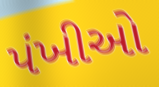
પંખીઓ